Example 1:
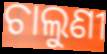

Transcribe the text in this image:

ଚାଲୁଣୀ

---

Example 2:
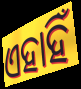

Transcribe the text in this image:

ଏହାହିଁ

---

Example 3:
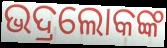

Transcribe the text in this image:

ଭଦ୍ରଲୋକଙ୍କ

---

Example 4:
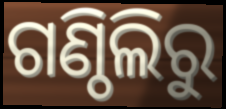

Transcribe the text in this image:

ଗଣ୍ଠିଲିରୁ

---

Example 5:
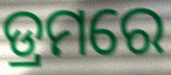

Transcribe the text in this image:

ଡ୍ରମରେ